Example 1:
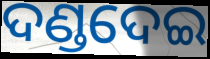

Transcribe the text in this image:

ଦଣ୍ଡଦେଇ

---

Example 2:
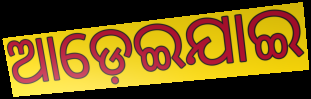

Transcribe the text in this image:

ଆଡ଼େଇଯାଇ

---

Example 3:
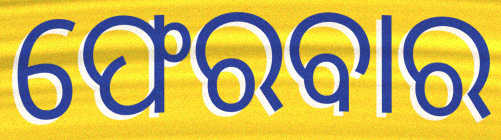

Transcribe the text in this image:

ଫେରବାର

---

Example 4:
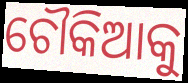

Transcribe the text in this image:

ଚୌକିଆକୁ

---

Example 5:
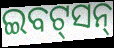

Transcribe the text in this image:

ଇବଟ୍‌ସନ୍